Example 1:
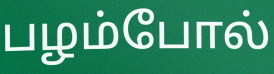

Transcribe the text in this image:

பழம்போல்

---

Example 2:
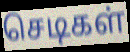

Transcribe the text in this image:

செடிகள்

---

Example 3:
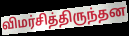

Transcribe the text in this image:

விமர்சித்திருந்தன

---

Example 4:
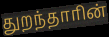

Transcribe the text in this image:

துறந்தாரின்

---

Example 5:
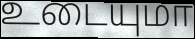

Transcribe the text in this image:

உடையுமா